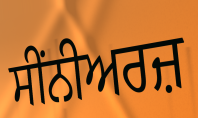
ਸੀਂਨੀਅਰਜ਼